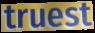
truest